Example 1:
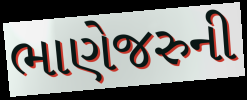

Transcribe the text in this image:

ભાણેજરુની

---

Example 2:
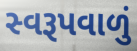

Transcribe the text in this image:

સ્વરૂપવાળું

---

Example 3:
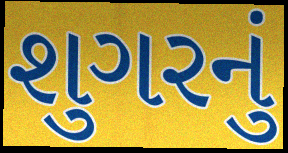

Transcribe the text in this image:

શુગરનું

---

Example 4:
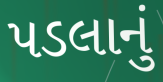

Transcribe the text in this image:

પડલાનું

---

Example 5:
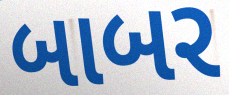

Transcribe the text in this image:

બાબર